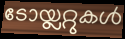
ടോയ്ലറ്റുകൾ